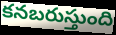
కనబరుస్తుంది